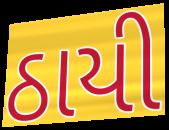
ઠાયી